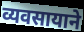
व्यवसायाने